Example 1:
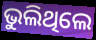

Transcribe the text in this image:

ଭୁଲିଥିଲେ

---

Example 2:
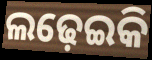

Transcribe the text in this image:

ଲଢ଼େଇକି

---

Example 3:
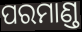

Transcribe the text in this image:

ପରମାଣ୍ଡ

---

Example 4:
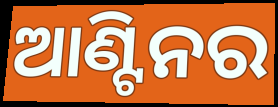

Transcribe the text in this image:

ଆଣ୍ଟିନର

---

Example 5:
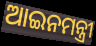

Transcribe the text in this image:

ଆଇନମନ୍ତ୍ରୀ